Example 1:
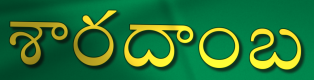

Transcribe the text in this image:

శారదాంబ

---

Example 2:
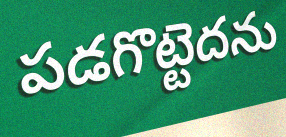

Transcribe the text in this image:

పడగొట్టెదను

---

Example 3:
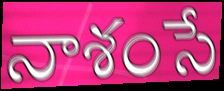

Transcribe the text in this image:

నాశంసే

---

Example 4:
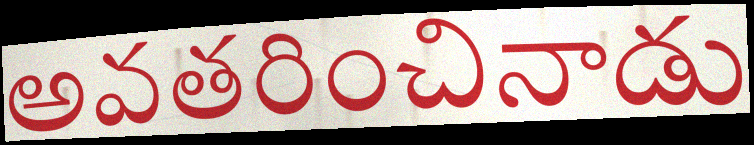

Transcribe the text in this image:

అవతరించినాడు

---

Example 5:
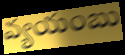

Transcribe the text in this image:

వ్యయంబు